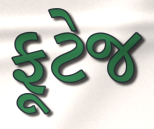
ફૂટેજ